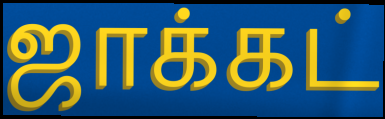
ஜாக்கட்